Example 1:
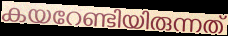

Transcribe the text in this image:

കയറേണ്ടിയിരുന്നത്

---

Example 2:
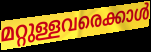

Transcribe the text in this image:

മറ്റുള്ളവരെക്കാൾ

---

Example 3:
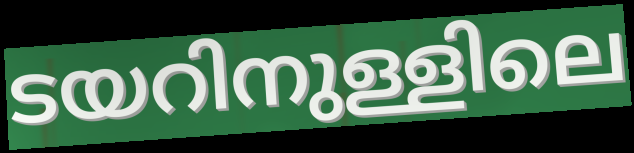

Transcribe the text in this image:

ടയറിനുള്ളിലെ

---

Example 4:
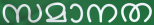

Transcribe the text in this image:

സമാനത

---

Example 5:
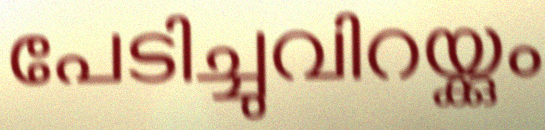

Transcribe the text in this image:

പേടിച്ചുവിറയ്ക്കും